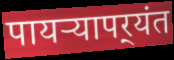
पायऱ्यापर्यंत